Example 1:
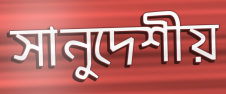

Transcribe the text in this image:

সানুদেশীয়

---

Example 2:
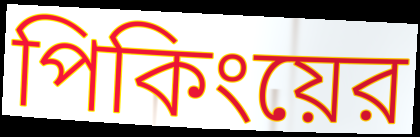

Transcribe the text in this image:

পিকিংয়ের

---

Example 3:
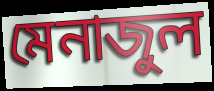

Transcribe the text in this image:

মেনাজুল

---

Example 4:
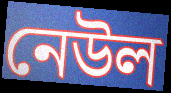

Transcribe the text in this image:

নেউল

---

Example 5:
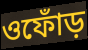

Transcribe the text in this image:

ওফোঁড়